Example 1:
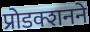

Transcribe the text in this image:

प्रोडक्शनने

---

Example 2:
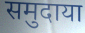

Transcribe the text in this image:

समुदाया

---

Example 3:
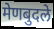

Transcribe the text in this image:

मेणबुदले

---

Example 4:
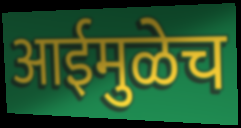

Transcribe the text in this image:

आईमुळेच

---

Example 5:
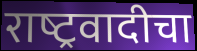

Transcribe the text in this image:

राष्ट्रवादीचा